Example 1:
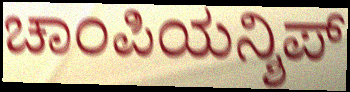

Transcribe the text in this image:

ಚಾಂಪಿಯನ್ಶಿಪ್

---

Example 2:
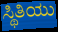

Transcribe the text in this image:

ಸ್ಥಿತಿಯು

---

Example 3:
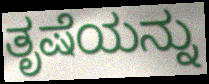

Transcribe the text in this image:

ತೃಷೆಯನ್ನು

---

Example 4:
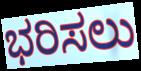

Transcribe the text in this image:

ಭರಿಸಲು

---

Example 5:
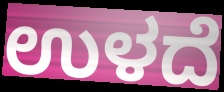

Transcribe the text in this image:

ಉಳದೆ